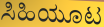
ಸಿಹಿಯೂಟ